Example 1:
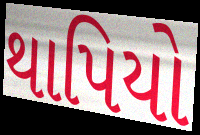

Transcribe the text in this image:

થાપિયો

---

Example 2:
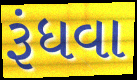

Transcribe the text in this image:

રૂંધવા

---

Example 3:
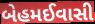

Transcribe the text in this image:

બેહમઈવાસી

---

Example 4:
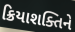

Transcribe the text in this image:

ક્રિયાશક્તિને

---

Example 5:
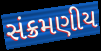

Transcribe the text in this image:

સંક્રમણીય